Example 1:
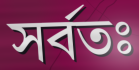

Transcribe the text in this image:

সর্বতঃ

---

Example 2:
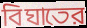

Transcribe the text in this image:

বিঘাতের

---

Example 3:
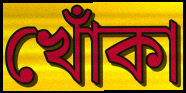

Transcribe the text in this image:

খোঁকা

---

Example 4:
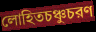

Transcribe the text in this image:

লোহিতচঞ্চুচরণ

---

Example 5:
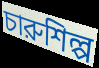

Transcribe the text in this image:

চারুশিল্প